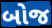
બોજ